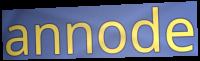
annode